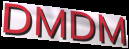
DMDM